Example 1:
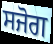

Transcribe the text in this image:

ਸਜੋਗ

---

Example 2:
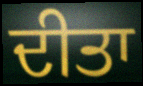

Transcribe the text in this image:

ਦੀਤਾ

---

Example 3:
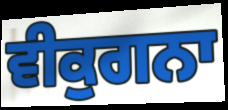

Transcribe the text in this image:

ਵੀਕੁਗਨਾ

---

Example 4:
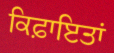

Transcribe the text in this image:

ਕਿਫ਼ਾਇਤਾਂ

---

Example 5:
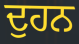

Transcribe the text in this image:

ਦੁਹਨ